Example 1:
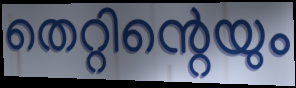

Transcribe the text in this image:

തെറ്റിന്റെയും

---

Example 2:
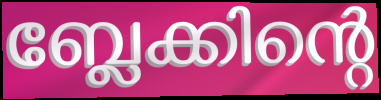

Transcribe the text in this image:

ബ്ലേക്കിന്റെ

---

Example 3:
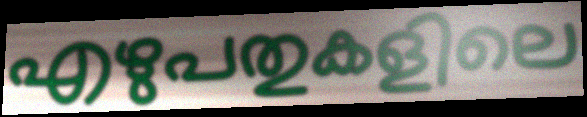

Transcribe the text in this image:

എഴുപതുകളിലെ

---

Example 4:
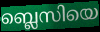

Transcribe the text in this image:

ബ്ലെസിയെ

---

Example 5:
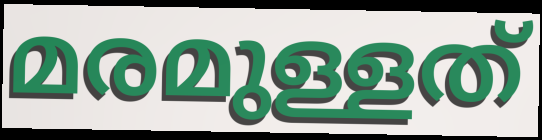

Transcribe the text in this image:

മരമുള്ളത്